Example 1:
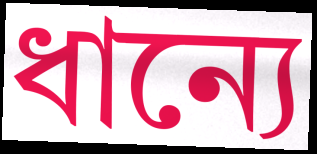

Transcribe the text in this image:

ধান্যে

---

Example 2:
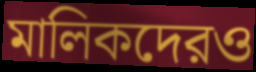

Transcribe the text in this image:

মালিকদেরও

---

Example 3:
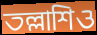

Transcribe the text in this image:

তল্লাশিও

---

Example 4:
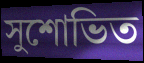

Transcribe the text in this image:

সুশোভিত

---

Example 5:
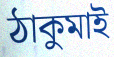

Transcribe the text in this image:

ঠাকুমাই